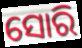
ସୋରି